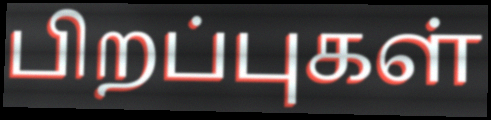
பிறப்புகள்